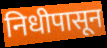
निधीपासून